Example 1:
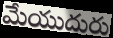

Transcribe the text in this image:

మేయుదురు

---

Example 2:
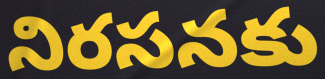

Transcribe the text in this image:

నిరసనకు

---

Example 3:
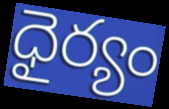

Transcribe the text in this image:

ధైర్యం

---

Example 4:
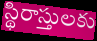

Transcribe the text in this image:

స్థిరాస్తులకు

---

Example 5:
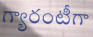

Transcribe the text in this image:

గ్యారంటీగా